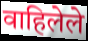
वाहिलेले